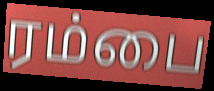
ரம்பை